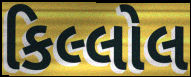
કિલ્લોલ